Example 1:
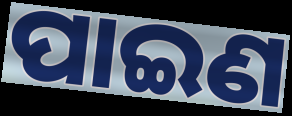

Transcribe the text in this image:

ପାଇଣ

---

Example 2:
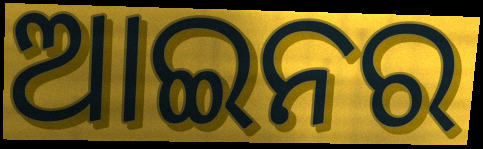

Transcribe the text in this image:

ଆଇନର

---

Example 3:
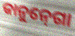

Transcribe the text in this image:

କାନୁନ୍‍ଗୋ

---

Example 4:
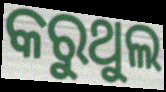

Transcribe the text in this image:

କରୁଥୁଲ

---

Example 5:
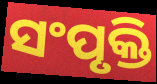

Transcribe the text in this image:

ସଂପୃକ୍ତି